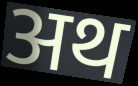
अथ